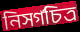
নিসর্গচিত্র